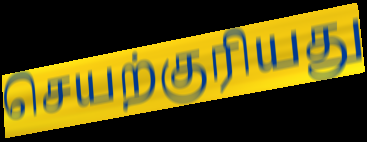
செயற்குரியது